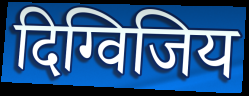
दिग्विजिय